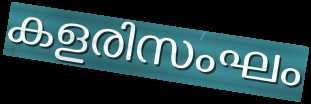
കളരിസംഘം